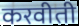
करवीती